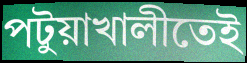
পটুয়াখালীতেই